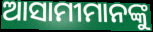
ଆସାମୀମାନଙ୍କୁ